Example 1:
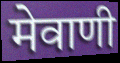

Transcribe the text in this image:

मेवाणी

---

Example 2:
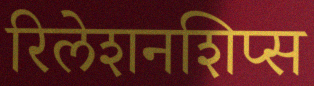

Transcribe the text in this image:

रिलेशनशिप्स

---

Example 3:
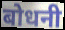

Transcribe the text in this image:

बोधनी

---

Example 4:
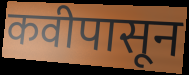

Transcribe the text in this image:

कवीपासून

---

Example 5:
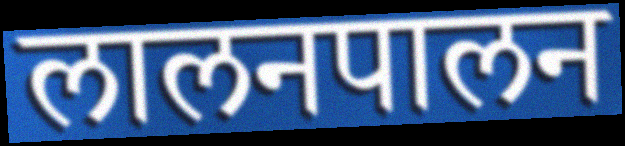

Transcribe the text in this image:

लालनपालन